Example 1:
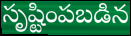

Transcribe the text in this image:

సృష్టింపబడిన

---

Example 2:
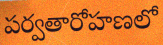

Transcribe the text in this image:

పర్వతారోహణలో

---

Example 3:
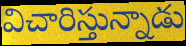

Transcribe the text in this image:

విచారిస్తున్నాడు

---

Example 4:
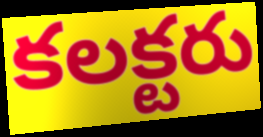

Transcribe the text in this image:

కలక్టరు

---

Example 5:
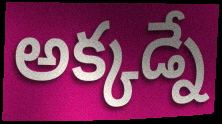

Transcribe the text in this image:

అక్కడ్నే